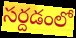
సర్దడంలో